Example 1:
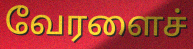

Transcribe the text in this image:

வேரளைச்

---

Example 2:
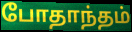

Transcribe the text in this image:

போதாந்தம்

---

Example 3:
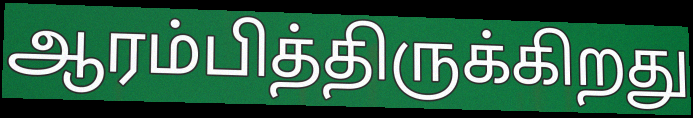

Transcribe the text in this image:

ஆரம்பித்திருக்கிறது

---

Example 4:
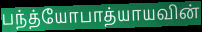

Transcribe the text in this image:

பந்த்யோபாத்யாயவின்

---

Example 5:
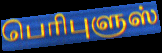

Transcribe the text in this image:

பெரிபுளுஸ்